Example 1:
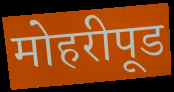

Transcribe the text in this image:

मोहरीपूड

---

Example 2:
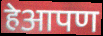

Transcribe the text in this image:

हेआपण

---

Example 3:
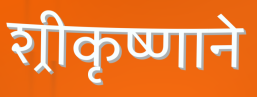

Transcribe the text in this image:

श्रीकृष्णाने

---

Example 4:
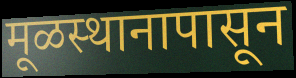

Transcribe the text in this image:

मूळस्थानापासून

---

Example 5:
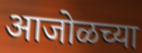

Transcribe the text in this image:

आजोळच्या